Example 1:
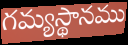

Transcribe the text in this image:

గమ్యస్థానము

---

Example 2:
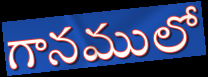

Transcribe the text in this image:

గానములో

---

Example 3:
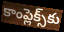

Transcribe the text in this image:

కాంప్లెక్స్‌కు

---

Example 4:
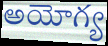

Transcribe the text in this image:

అయోగ్య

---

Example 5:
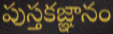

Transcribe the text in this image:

పుస్తకజ్ఞానం